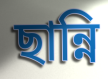
ছান্নি